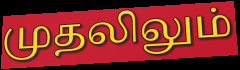
முதலிலும்